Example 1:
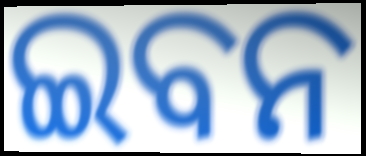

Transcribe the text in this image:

ଇବନ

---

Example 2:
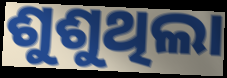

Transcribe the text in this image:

ଶୁଶୁଥିଲା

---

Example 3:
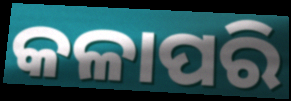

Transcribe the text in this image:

କଳାପରି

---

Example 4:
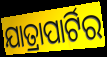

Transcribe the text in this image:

ଯାତ୍ରାପାର୍ଟିର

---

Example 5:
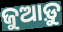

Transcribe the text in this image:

ଜୁଆଡ଼ୁ